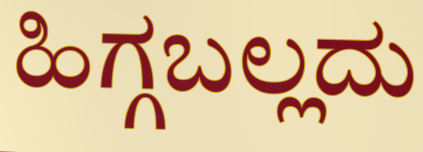
ಹಿಗ್ಗಬಲ್ಲದು